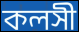
কলসী